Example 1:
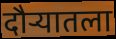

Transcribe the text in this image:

दौऱ्यातला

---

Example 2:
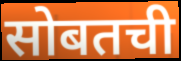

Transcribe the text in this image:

सोबतची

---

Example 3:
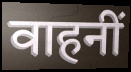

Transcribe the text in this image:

वाहनीं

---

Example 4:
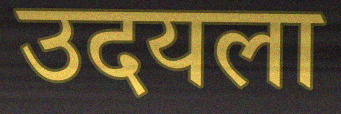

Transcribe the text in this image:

उदयला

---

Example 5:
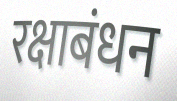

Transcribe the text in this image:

रक्षाबंधन